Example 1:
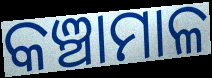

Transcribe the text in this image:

କଞ୍ଚାମାଳ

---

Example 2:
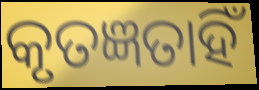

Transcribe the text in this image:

କୃତଜ୍ଞତାହିଁ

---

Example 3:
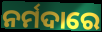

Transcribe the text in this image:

ନର୍ମଦାରେ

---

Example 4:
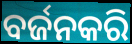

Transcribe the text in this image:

ବର୍ଜନକରି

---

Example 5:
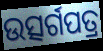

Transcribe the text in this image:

ଉତ୍ସର୍ଗପତ୍ର